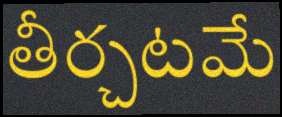
తీర్చటమే